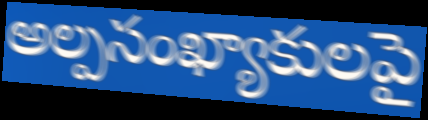
అల్పసంఖ్యాకులపై